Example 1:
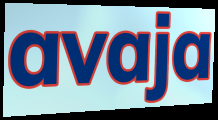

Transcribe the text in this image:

avaja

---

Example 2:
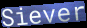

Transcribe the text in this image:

Siever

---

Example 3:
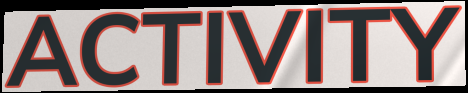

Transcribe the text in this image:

ACTIVITY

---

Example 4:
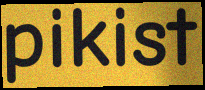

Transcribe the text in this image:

pikist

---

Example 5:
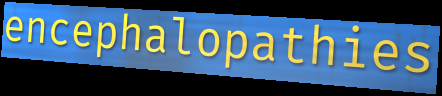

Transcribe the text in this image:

encephalopathies